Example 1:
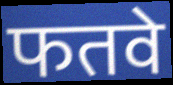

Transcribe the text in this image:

फतवे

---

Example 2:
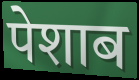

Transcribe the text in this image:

पेशाब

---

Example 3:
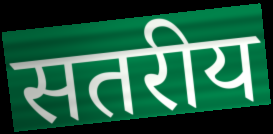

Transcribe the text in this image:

सतरीय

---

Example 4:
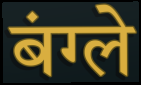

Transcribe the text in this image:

बंग्ले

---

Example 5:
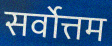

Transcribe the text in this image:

सर्वोत्तम